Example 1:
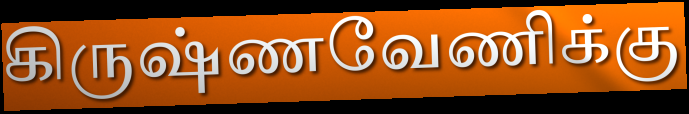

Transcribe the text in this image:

கிருஷ்ணவேணிக்கு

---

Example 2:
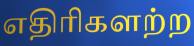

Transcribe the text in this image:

எதிரிகளற்ற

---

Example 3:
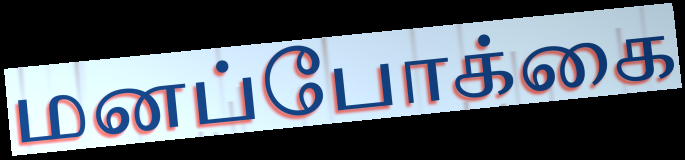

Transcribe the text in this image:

மனப்போக்கை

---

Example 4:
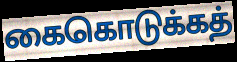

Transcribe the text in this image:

கைகொடுக்கத்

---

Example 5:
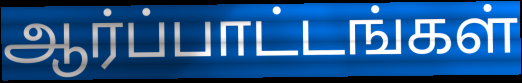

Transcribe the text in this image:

ஆர்ப்பாட்டங்கள்